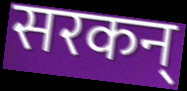
सरकन्